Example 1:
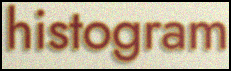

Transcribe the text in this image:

histogram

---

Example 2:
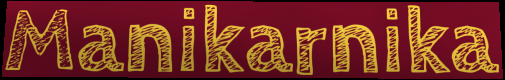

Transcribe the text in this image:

Manikarnika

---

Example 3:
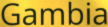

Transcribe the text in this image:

Gambia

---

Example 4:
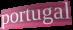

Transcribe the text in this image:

portugal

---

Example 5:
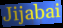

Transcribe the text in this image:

Jijabai